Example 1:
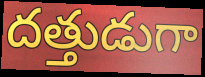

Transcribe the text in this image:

దత్తుడుగా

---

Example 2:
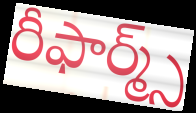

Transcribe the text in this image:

రీఫార్మ్స్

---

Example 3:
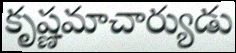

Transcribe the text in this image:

కృష్ణమాచార్యుడు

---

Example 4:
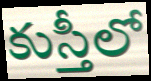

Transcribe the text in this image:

కుస్తీలో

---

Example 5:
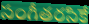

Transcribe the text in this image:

సంగీతరసికే